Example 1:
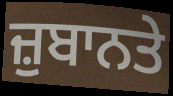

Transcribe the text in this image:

ਜ਼ੁਬਾਨਤੇ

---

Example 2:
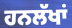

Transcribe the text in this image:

ਹਨਲੱਖਾਂ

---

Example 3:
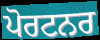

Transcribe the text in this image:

ਪੋਰਟਨਰ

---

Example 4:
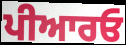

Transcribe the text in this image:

ਪੀਆਰਓ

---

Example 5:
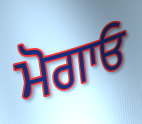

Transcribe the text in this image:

ਮੋਗਾਓ